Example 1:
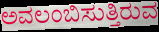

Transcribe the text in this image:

ಅವಲಂಬಿಸುತ್ತಿರುವ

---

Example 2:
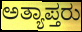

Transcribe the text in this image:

ಅತ್ಯಾಪ್ತರು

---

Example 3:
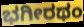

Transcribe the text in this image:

ಭಗೀರಥಂ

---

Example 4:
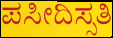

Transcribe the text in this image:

ಪಸೀದಿಸ್ಸತಿ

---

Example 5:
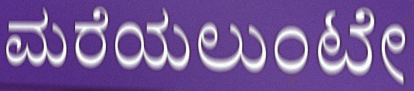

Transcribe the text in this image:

ಮರೆಯಲುಂಟೇ